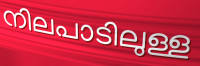
നിലപാടിലുള്ള